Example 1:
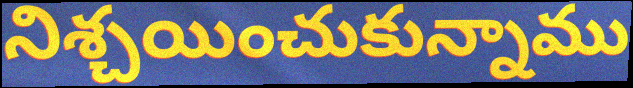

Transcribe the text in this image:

నిశ్చయించుకున్నాము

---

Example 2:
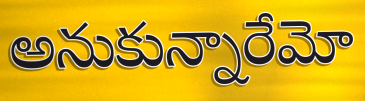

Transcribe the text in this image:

అనుకున్నారేమో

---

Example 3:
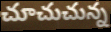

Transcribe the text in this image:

చూచుచున్న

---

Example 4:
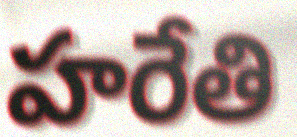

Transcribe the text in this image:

హరేతి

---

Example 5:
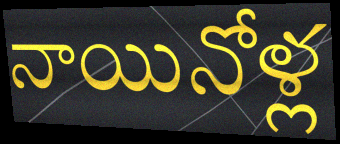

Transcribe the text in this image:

నాయినోళ్ల